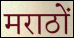
मराठों